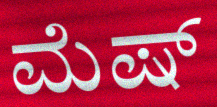
ಮೆಷ್